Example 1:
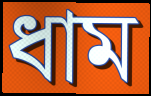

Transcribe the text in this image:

ধাম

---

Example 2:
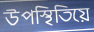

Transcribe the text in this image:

উপস্থিতিয়ে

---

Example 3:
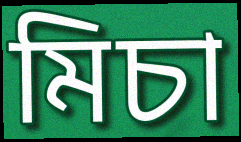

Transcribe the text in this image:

মিচা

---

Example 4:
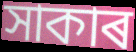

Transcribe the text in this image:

সাকাৰ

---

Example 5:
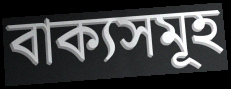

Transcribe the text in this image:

বাক্যসমূহ